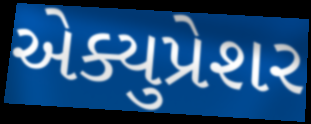
એક્યુપ્રેશર